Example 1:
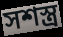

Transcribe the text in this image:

সশস্ত্র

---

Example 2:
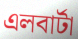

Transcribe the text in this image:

এলবার্টা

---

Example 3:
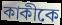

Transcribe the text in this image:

কাকীকে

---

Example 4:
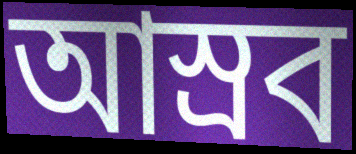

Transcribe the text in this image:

আস্রব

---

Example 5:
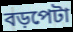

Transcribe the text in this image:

বড়পেটা